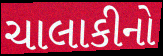
ચાલાકીનો